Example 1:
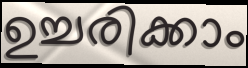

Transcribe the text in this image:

ഉച്ചരിക്കാം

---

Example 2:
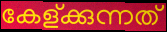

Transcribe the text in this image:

കേള്ക്കുന്നത്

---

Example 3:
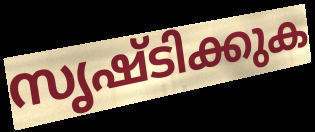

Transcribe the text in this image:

സൃഷ്ടിക്കുക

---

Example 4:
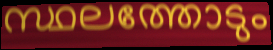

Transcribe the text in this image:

സ്ഥലത്തോടും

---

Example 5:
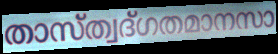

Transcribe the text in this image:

താസ്ത്വദ്ഗതമാനസാ